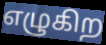
எழுகிற